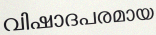
വിഷാദപരമായ